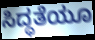
ಸಿದ್ಧತೆಯೂ